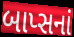
બાપ્સનાં